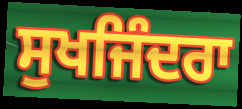
ਸੁਖਜਿੰਦਰਾ